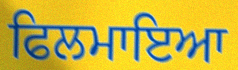
ਫਿਲਮਾਇਆ